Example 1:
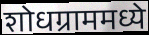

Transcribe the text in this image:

शोधग्राममध्ये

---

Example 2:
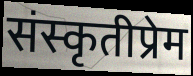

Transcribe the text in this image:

संस्कृतीप्रेम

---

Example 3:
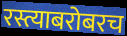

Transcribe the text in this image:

रस्त्याबरोबरच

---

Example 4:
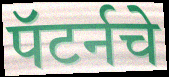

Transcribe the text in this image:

पॅटर्नचे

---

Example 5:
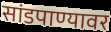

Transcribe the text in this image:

सांडपाण्यावर